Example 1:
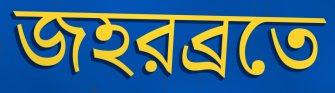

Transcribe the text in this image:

জহরব্রতে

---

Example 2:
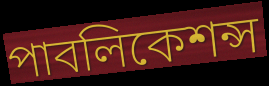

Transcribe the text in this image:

পাবলিকেশন্স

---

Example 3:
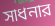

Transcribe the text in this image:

সাধনার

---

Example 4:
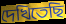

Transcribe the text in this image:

দেখিতেছি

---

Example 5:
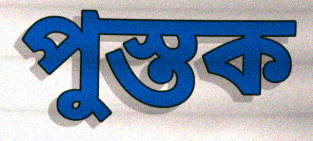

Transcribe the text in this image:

পুস্তক